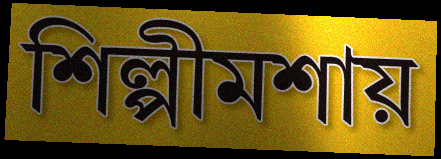
শিল্পীমশায়